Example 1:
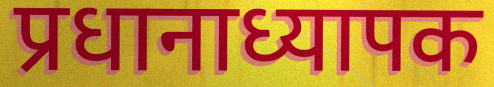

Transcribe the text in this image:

प्रधानाध्यापक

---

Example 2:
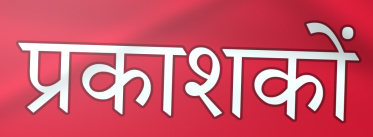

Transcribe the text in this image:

प्रकाशकों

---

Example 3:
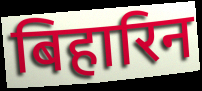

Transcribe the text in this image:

बिहारिन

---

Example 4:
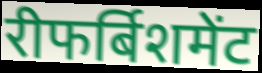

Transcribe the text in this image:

रीफर्बिशमेंट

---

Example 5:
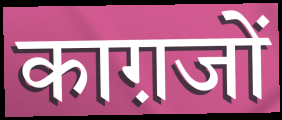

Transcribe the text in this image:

काग़जों